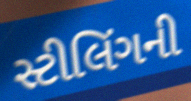
સ્ટીલિંગની